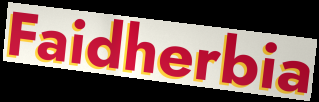
Faidherbia